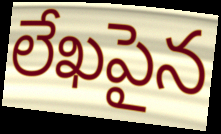
లేఖపైన